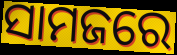
ସାମଜରେ